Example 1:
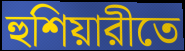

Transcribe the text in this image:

হুশিয়ারীতে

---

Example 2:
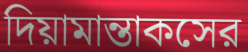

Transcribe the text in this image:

দিয়ামান্তাকসের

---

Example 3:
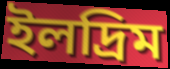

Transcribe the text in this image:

ইলদ্রিম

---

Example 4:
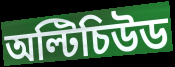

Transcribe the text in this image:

অল্টিচিউড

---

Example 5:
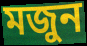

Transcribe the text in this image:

মজুন